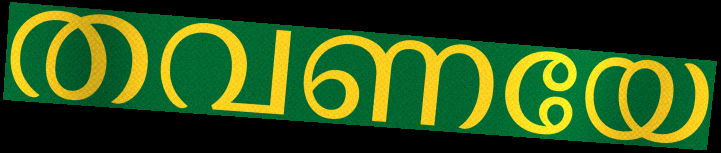
തവണയേ